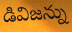
డివిజన్ను